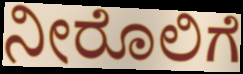
ನೀರೊಲಿಗೆ